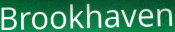
Brookhaven